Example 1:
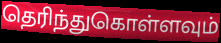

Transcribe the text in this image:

தெரிந்துகொள்ளவும்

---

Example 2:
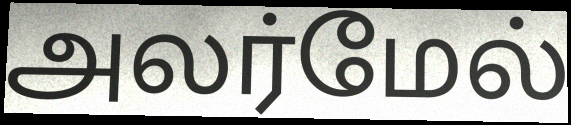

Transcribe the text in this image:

அலர்மேல்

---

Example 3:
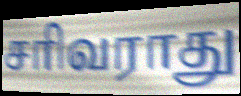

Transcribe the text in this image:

சரிவராது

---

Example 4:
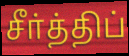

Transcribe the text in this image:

சீர்த்திப்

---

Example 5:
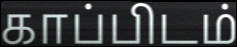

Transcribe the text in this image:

காப்பிடம்